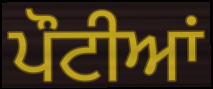
ਪੌਟੀਆਂ